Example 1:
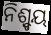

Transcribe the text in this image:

ନିଶ୍ୱ୍ଚୟ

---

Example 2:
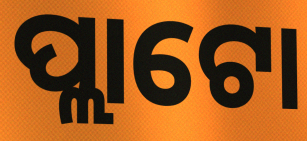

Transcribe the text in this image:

ପ୍ଲାଟୋ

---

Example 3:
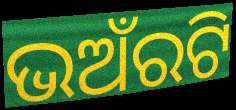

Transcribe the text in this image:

ଭଅଁରଟି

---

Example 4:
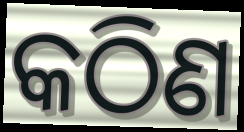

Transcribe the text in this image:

କଠିଣ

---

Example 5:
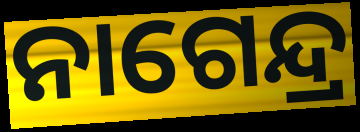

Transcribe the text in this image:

ନାଗେନ୍ଦ୍ର